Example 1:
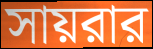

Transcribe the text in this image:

সায়রার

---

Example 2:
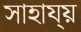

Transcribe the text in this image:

সাহায্য়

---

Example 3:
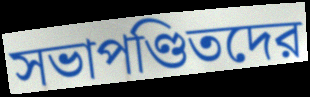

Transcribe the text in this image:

সভাপণ্ডিতদের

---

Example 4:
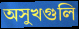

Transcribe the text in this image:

অসুখগুলি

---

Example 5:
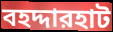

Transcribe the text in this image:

বহদ্দারহাট